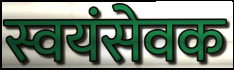
स्वयंसेवक